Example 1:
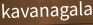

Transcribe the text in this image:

kavanagala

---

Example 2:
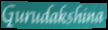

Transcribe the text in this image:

Gurudakshina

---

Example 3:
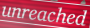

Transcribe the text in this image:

unreached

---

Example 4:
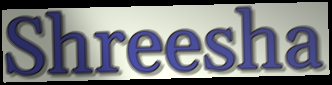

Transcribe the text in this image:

Shreesha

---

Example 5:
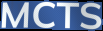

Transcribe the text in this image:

MCTS